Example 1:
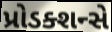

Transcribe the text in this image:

પ્રોડક્શન્સે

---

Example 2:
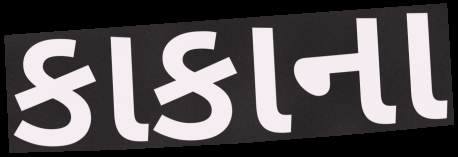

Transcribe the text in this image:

કાકાના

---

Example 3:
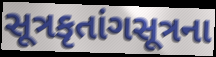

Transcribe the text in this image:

સૂત્રકૃતાંગસૂત્રના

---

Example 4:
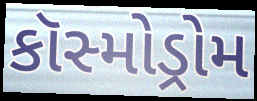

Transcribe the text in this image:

કૉસ્મોડ્રોમ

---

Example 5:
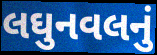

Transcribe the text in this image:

લઘુનવલનું